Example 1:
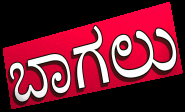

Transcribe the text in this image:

ಬಾಗಲು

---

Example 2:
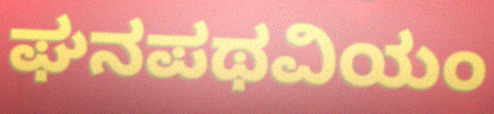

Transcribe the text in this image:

ಘನಪಥವಿಯಂ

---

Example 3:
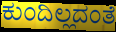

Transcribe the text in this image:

ಕುಂದಿಲ್ಲದಂತೆ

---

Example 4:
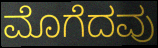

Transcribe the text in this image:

ಮೊಗೆದವು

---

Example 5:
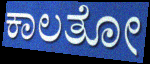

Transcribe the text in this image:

ಕಾಲತೋ